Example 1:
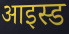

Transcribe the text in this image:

आइस्ड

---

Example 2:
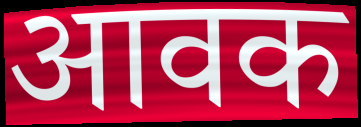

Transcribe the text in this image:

आवक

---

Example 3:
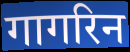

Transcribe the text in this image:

गागरिन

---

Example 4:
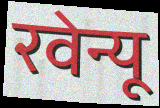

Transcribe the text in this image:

रवेन्यू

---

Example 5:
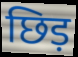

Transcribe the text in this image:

छिड़